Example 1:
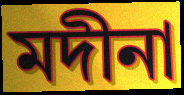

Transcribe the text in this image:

মদীনা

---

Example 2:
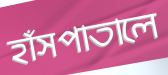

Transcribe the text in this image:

হাঁসপাতালে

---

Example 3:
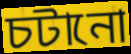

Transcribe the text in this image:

চটানো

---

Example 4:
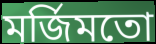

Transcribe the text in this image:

মর্জিমতো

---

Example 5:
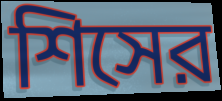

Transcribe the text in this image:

শিসের